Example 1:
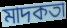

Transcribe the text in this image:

মাদকতা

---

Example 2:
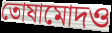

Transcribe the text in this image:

তোষামোদও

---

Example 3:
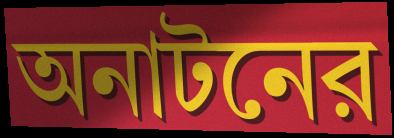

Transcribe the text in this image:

অনাটনের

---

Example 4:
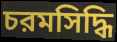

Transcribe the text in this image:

চরমসিদ্ধি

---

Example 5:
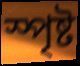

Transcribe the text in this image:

স্পৃষ্ট